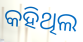
କହିଥିଲ